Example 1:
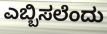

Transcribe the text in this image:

ಎಬ್ಬಿಸಲೆಂದು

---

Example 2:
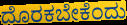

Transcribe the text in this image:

ದೊರಕಬೇಕೆಂದು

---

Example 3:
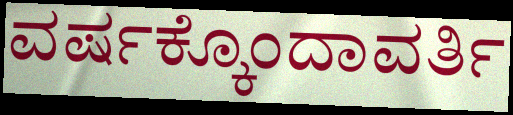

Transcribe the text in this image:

ವರ್ಷಕ್ಕೊಂದಾವರ್ತಿ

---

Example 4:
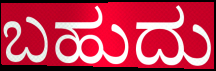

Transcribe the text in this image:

ಬಹುದು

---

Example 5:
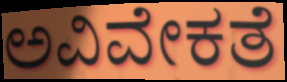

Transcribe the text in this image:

ಅವಿವೇಕತೆ